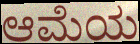
ಆಮೆಯ